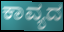
ಕಾವ್ಯದ